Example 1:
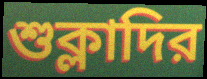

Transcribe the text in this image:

শুক্লাদির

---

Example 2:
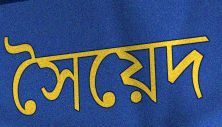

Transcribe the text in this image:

সৈয়েদ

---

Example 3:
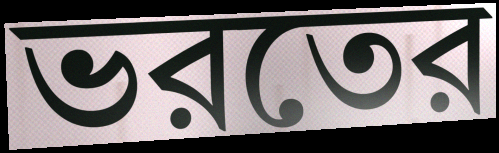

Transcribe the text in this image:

ভরতের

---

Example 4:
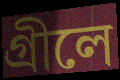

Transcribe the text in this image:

গ্রীলে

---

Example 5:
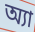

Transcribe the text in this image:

অ্যা